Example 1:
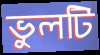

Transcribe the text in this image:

ভুলটি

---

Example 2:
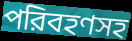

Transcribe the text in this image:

পরিবহণসহ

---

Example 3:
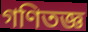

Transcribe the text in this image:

গণিতজ্ঞ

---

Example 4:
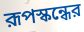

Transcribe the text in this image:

রূপস্কন্ধের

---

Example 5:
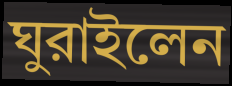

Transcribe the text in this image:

ঘুরাইলেন